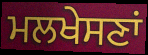
ਮਲਖੇਸਣਾਂ